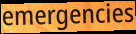
emergencies